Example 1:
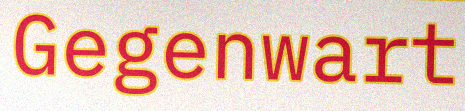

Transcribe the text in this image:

Gegenwart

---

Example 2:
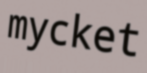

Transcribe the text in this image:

mycket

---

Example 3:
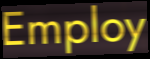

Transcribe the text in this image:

Employ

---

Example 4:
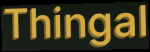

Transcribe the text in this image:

Thingal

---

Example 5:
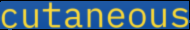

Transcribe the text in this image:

cutaneous